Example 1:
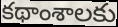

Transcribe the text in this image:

కథాంశాలకు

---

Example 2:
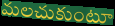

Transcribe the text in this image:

మలచుకుంటూ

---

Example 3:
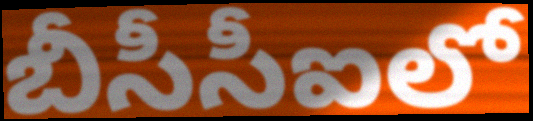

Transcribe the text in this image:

బీసీసీఐలో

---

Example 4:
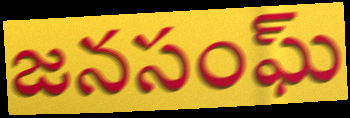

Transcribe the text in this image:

జనసంఘ్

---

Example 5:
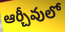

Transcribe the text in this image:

ఆర్చీవులో